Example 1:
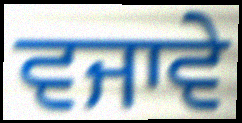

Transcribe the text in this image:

ਵਜਾਵੇ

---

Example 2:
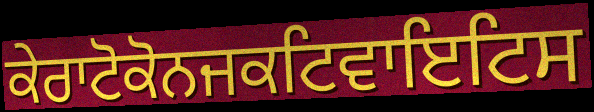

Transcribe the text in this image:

ਕੇਰਾਟੋਕੋਨਜਕਟਿਵਾਇਟਿਸ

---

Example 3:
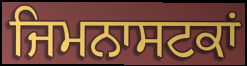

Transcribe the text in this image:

ਜਿਮਨਾਸਟਕਾਂ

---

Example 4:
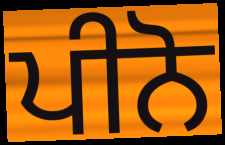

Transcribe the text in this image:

ਪੀਨੋ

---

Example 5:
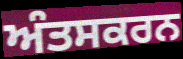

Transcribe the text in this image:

ਅੰਤਸਕਰਨ